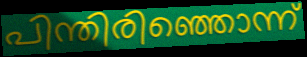
പിന്തിരിഞ്ഞൊന്ന്